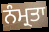
ਨੰਮ੍ਰਤਾ